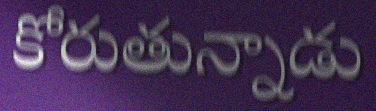
కోరుతున్నాడు